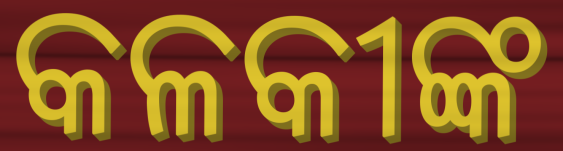
କଳକୀଙ୍କ